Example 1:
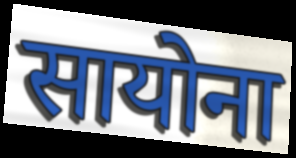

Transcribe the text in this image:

सायोना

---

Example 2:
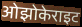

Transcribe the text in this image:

ओझोकेराइट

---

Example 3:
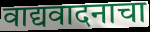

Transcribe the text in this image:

वाद्यवादनाचा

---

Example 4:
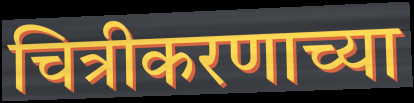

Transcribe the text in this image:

चित्रीकरणाच्या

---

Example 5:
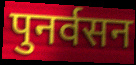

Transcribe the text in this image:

पुनर्वसन